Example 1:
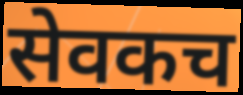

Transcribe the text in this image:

सेवकच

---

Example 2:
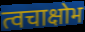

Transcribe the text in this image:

त्वचाक्षोभ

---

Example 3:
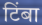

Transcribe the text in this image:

टिंबा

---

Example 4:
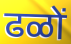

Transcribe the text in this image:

ढळों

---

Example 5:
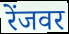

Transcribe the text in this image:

रेंजवर